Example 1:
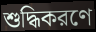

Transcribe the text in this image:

শুদ্ধিকরণে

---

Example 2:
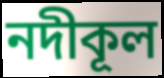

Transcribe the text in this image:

নদীকূল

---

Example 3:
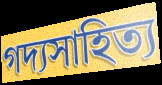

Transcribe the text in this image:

গদ্যসাহিত্য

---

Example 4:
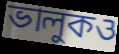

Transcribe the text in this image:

ভালুকও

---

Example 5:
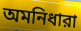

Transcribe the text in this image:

অমনিধারা